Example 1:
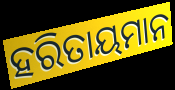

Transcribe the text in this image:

ହରିତାୟମାନ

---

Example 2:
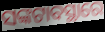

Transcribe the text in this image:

ସଙ୍କଟାବସ୍ଥାରେ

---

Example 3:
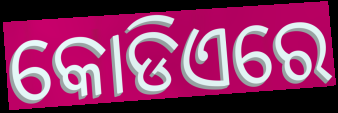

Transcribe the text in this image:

କୋଡିଏରେ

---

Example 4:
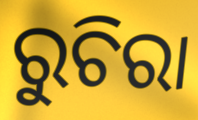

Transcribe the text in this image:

ରୁଚିରା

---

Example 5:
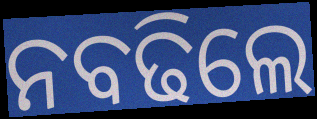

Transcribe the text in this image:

ନବଢିଲେ